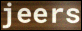
jeers